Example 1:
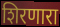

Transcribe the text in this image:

शिरणारा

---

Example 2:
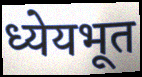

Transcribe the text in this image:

ध्येयभूत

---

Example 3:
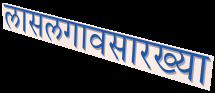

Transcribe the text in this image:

लासलगावसारख्या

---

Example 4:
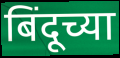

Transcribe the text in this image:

बिंदूच्या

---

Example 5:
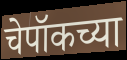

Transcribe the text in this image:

चेपॉकच्या